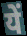
यें